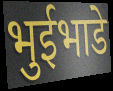
भुईभाडे